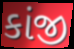
કાંજી